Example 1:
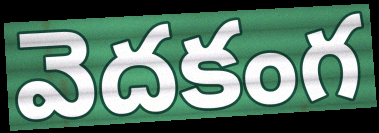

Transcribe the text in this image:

వెదకంగ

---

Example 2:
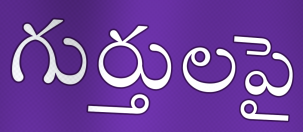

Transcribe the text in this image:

గుర్తులపై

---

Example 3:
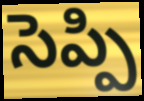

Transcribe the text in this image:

సెప్పి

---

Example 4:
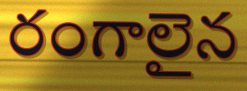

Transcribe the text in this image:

రంగాలైన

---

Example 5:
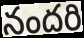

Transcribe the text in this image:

నందరి